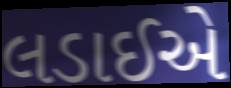
લડાઈએ